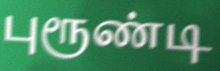
புரூண்டி